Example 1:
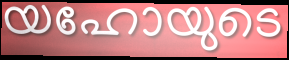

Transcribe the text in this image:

യഹോയുടെ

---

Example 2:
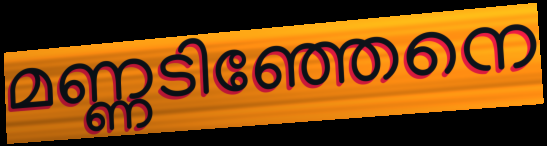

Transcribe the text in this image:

മണ്ണടിഞ്ഞേനെ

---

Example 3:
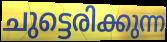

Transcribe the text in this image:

ചുട്ടെരിക്കുന്ന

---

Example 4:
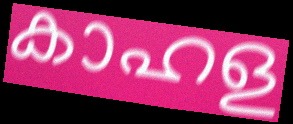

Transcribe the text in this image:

കാഹള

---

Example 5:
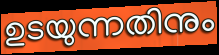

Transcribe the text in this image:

ഉടയുന്നതിനും